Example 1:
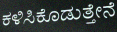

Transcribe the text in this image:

ಕಳಿಸಿಕೊಡುತ್ತೇನೆ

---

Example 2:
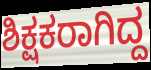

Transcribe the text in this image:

ಶಿಕ್ಷಕರಾಗಿದ್ದ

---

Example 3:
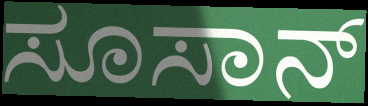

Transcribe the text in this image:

ಸೂಸಾನ್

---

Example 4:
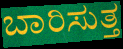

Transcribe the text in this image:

ಬಾರಿಸುತ್ತ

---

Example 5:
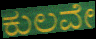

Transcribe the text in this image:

ಕುಲವೇ